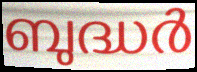
ബുദ്ധർ